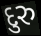
દુરુ